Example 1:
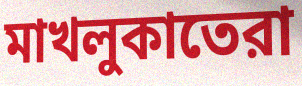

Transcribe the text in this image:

মাখলুকাতেরা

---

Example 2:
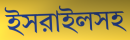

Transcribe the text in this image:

ইসরাইলসহ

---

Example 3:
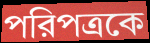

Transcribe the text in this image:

পরিপত্রকে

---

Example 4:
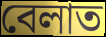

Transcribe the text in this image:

বেলাত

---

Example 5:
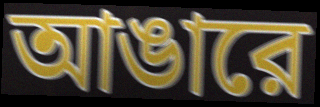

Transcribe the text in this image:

আঙারে